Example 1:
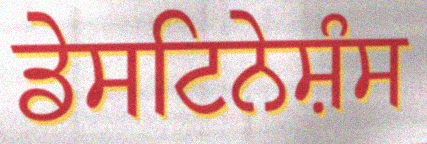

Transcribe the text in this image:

ਡੇਸਟਿਨੇਸ਼ੰਸ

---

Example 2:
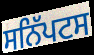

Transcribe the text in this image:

ਸਨਿੱਪਟਸ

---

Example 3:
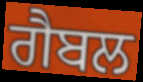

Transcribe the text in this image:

ਗੈਬਲ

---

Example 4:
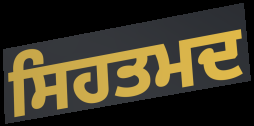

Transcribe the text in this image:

ਸਿਹਤਮਦ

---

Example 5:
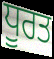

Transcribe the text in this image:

ਧੂਰਤ